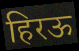
हिरऊ